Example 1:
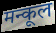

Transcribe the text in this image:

मन्कूल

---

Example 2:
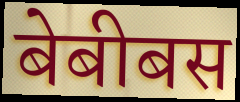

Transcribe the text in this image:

बेबीबस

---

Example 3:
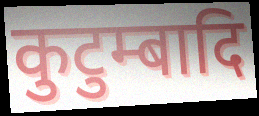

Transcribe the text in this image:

कुटुम्बादि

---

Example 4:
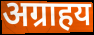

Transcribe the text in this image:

अग्राहय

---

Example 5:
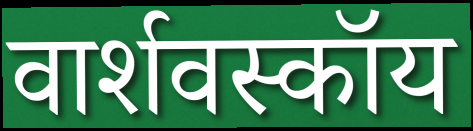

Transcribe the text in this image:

वार्शवस्कॉय